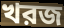
খরজ